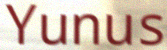
Yunus